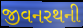
જીવનરથની